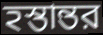
হস্তান্তর